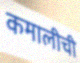
कमालीची